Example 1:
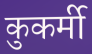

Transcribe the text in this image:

कुकर्मी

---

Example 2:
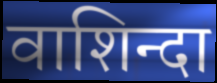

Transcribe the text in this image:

वाशिन्दा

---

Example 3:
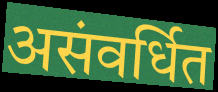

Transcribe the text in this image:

असंवर्धित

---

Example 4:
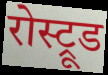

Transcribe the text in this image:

रोस्ट्रूड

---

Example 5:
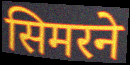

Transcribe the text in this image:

सिमरने